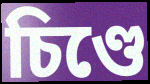
চিণ্ডে